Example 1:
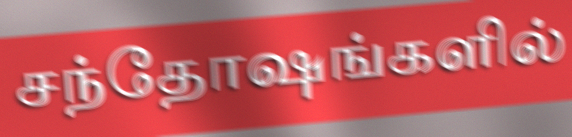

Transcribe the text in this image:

சந்தோஷங்களில்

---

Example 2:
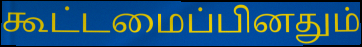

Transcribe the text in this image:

கூட்டமைப்பினதும்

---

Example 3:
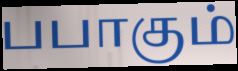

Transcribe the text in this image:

பபாகும்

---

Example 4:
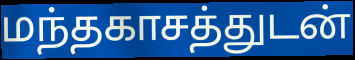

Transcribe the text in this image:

மந்தகாசத்துடன்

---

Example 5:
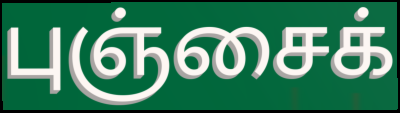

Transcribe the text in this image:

புஞ்சைக்